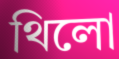
থিলো